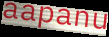
aapanu